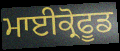
ਮਾਈਕ੍ਰੋਫੂਡ